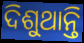
ଦିଶୁଥାନ୍ତି